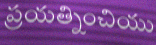
ప్రయత్నించియు